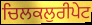
ਚਿਲਕਲੁਰੀਪੇਟ